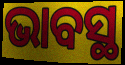
ଭାବସ୍ଥ